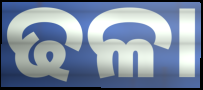
ଢଳା